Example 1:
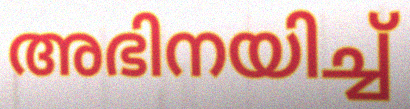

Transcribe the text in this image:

അഭിനയിച്ച്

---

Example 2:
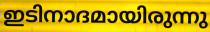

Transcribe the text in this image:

ഇടിനാദമായിരുന്നു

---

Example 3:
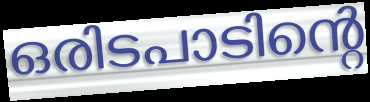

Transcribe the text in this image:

ഒരിടപാടിന്റെ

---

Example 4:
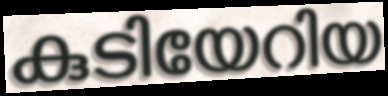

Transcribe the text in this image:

കുടിയേറിയ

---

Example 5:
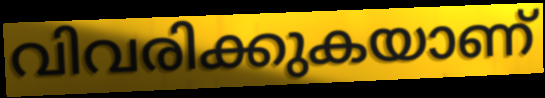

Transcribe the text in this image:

വിവരിക്കുകയാണ്